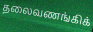
தலைவணங்கிக்